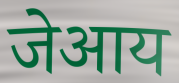
जेआय